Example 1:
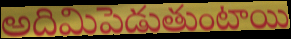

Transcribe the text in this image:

అదిమిపెడుతుంటాయి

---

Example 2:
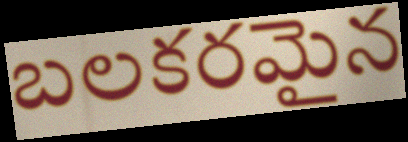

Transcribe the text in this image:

బలకరమైన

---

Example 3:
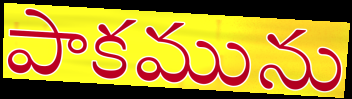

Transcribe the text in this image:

పాకమును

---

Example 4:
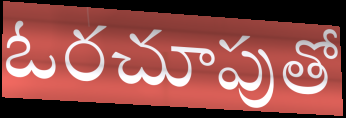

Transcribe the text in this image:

ఓరచూపుతో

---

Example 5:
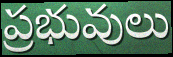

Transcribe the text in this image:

ప్రభువులు